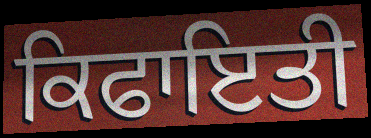
ਕਿਫਾਇਤੀ